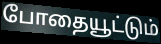
போதையூட்டும்